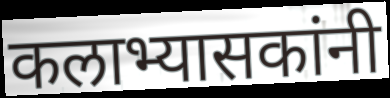
कलाभ्यासकांनी